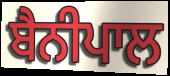
ਬੈਨੀਪਾਲ